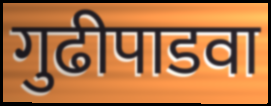
गुढीपाडवा